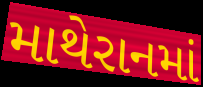
માથેરાનમાં